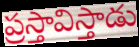
ప్రస్తావిస్తాడు